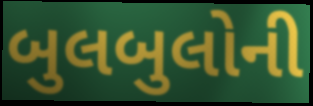
બુલબુલોની